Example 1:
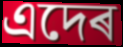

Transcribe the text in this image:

এদেৰ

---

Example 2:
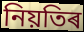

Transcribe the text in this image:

নিয়তিৰ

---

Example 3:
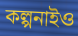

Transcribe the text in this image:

কল্পনাইও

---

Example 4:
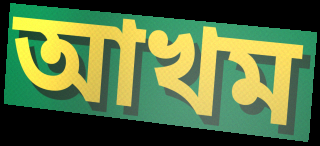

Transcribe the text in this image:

আখম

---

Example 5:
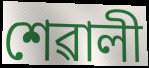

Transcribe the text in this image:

শেৱালী